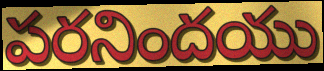
పరనిందయు